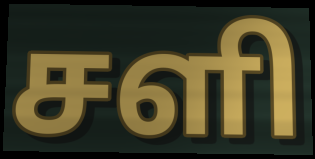
சளி